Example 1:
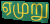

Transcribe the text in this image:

ஏமுறு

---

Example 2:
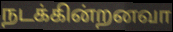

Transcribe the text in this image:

நடக்கின்றனவா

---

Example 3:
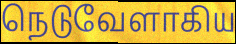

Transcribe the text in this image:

நெடுவேளாகிய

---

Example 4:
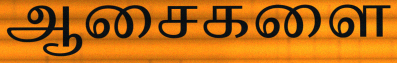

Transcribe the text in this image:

ஆசைகளை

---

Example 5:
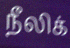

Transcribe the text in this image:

நீலிக்